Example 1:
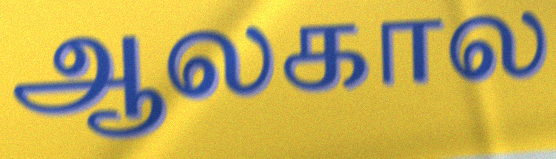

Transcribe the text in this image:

ஆலகால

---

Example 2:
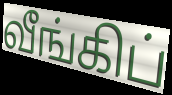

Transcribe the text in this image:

வீங்கிப்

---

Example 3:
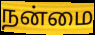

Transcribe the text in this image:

நன்மை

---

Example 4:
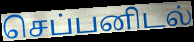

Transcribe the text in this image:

செப்பனிடல்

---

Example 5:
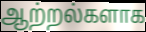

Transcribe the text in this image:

ஆற்றல்களாக